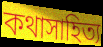
কথাসাহিত্য